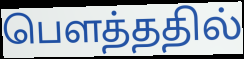
பௌத்ததில்